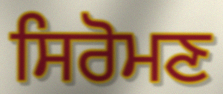
ਸਿਰੋਮਣ